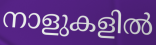
നാളുകളിൽ